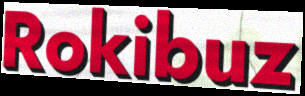
Rokibuz